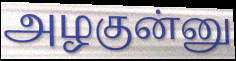
அழகுன்னு